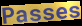
Passes